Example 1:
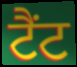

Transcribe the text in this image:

ਟੈਂਟ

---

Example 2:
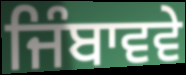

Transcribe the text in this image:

ਜਿੰਬਾਵਵੇ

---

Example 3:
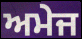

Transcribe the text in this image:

ਅਮੇਜ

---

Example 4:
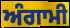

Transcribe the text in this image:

ਅੰਗਾਮੀ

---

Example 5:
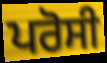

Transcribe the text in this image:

ਪਰੋਸੀ